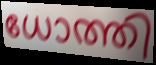
ധോത്തി